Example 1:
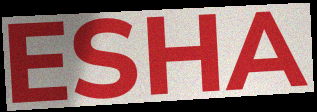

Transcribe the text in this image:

ESHA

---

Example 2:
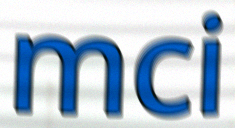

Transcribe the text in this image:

mci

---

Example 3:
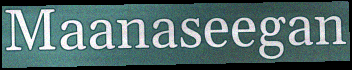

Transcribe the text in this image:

Maanaseegan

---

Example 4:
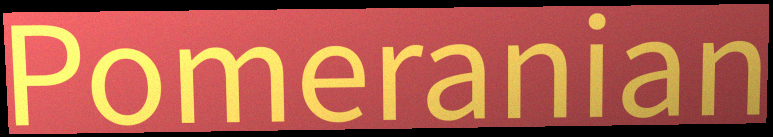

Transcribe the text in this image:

Pomeranian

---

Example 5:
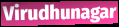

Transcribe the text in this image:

Virudhunagar